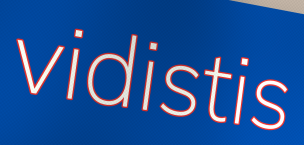
vidistis